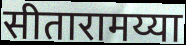
सीतारामय्या